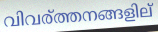
വിവര്ത്തനങ്ങളില്